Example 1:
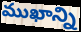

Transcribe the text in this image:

ముఖాన్ని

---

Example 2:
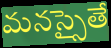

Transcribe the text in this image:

మనస్సైతే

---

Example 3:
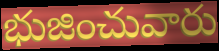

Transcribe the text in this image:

భుజించువారు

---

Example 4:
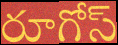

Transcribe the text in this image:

రూగోస్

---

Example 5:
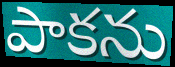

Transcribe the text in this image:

పాకను